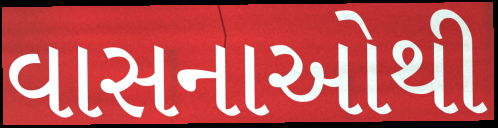
વાસનાઓથી